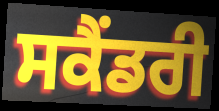
ਸਕੈਂਡਰੀ